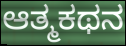
ಆತ್ಮಕಥನ